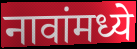
नावांमध्ये